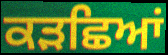
ਕੜਛਿਆਂ